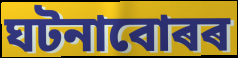
ঘটনাবোৰৰ